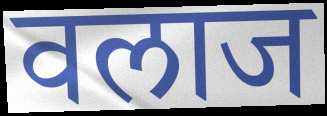
वलाज